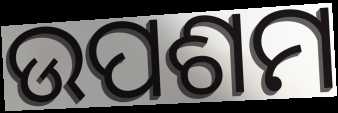
ଉପଶମ